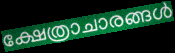
ക്ഷേത്രാചാരങ്ങൾ